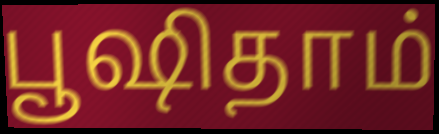
பூஷிதாம்